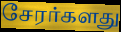
சேரர்களது